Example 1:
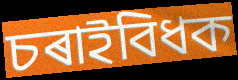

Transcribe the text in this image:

চৰাইবিধক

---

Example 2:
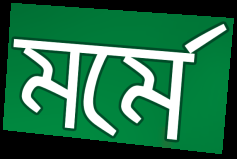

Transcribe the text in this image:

মৰ্মে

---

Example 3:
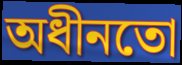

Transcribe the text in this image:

অধীনতো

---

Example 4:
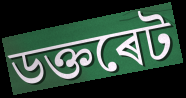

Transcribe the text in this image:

ডক্তৰেট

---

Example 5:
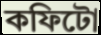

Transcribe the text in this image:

কফিটো